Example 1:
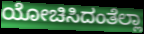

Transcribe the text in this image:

ಯೋಚಿಸಿದಂತೆಲ್ಲಾ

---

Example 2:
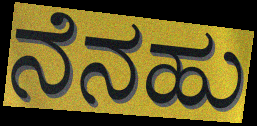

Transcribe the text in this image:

ನೆನಹು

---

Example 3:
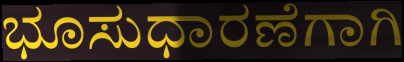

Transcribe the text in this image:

ಭೂಸುಧಾರಣೆಗಾಗಿ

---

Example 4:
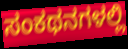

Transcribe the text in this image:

ಸಂಕಥನಗಳಲ್ಲಿ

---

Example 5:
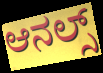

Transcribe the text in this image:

ಆನಲ್ಸ್